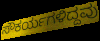
ಸೌಕರ್ಯಗಳಿದ್ದವು